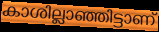
കാശില്ലാഞ്ഞിട്ടാണ്